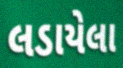
લડાયેલા